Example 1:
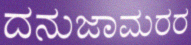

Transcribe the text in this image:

ದನುಜಾಮರರ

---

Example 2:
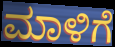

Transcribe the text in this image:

ಮಾಳಿಗೆ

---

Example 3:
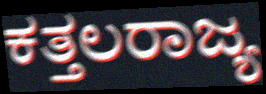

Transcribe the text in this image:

ಕತ್ತಲರಾಜ್ಯ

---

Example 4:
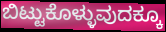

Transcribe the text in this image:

ಬಿಟ್ಟುಕೊಳ್ಳುವುದಕ್ಕೂ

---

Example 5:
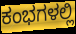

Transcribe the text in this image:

ಕಂಭಗಳಲ್ಲಿ